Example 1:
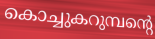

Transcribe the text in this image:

കൊച്ചുകറുമ്പന്റെ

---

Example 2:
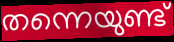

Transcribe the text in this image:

തന്നെയുണ്ട്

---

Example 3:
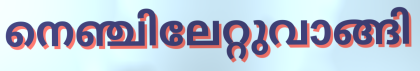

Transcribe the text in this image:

നെഞ്ചിലേറ്റുവാങ്ങി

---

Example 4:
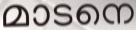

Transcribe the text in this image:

മാടനെ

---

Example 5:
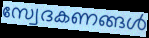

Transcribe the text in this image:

സ്വേദകണങ്ങൾ